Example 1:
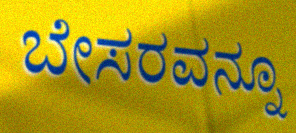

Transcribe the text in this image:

ಬೇಸರವನ್ನೂ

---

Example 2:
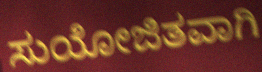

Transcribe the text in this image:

ಸುಯೋಜಿತವಾಗಿ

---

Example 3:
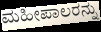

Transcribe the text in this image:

ಮಹೀಪಾಲರನ್ನು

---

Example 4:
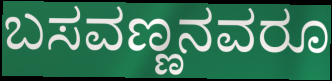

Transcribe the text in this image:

ಬಸವಣ್ಣನವರೂ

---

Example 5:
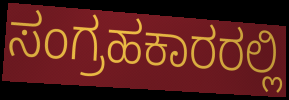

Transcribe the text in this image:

ಸಂಗ್ರಹಕಾರರಲ್ಲಿ